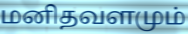
மனிதவளமும்